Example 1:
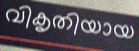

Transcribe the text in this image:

വികൃതിയായ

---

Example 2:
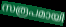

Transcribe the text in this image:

സരൂപമായി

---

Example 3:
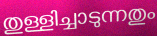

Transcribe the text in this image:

തുള്ളിച്ചാടുന്നതും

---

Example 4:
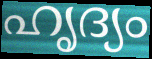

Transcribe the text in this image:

ഹൃദ്യം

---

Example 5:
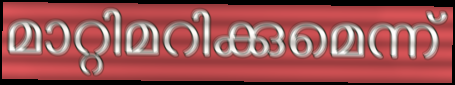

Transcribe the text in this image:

മാറ്റിമറിക്കുമെന്ന്